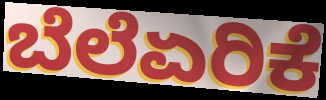
ಬೆಲೆಏರಿಕೆ